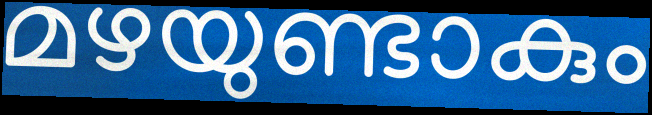
മഴയുണ്ടാകും